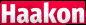
Haakon